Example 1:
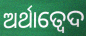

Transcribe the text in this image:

ଅର୍ଥାତ୍ବେଦ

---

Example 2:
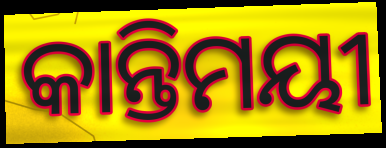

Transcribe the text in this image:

କାନ୍ତିମୟୀ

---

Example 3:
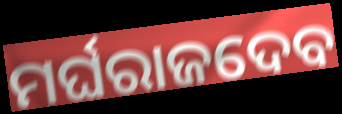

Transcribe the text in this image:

ମର୍ଘରାଜଦେବ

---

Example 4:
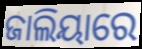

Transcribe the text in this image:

ଜାଲିୟାରେ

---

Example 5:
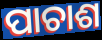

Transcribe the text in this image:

ପାଚାଶ